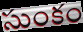
సుంకం